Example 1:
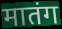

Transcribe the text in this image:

मातंग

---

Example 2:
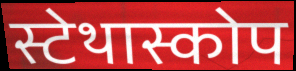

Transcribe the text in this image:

स्टेथास्कोप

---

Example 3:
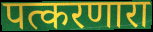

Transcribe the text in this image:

पत्करणारा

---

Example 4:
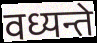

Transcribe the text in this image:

वध्यन्ते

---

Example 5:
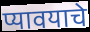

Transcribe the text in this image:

प्यावयाचे